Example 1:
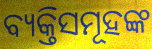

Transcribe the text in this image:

ବ୍ୟକ୍ତିସମୂହଙ୍କ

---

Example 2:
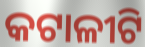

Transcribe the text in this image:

କଟାଳୀଟି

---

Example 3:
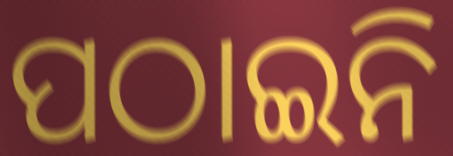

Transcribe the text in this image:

ପଠାଇନି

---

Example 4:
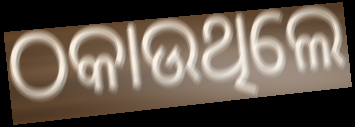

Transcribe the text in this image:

ଠକାଉଥିଲେ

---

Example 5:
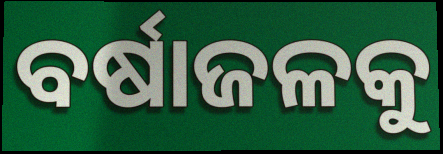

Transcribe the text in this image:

ବର୍ଷାଜଳକୁ